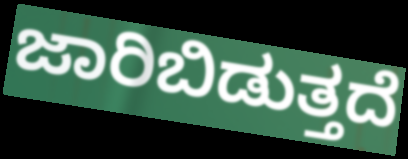
ಜಾರಿಬಿಡುತ್ತದೆ